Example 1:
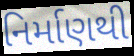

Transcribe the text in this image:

નિર્માણથી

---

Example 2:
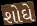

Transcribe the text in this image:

શોઘે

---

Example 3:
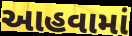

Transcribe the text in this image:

આહવામાં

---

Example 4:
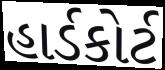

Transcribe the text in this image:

હાર્ડકોર્ટ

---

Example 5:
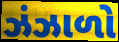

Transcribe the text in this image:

ઝંઝાળો